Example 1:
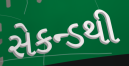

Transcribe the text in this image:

સેકન્ડથી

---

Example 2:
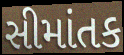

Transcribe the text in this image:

સીમાંતક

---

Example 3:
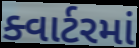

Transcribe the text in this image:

ક્વાર્ટરમાં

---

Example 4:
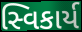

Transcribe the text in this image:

સ્વિકાર્ય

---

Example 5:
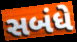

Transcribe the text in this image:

સબંધે